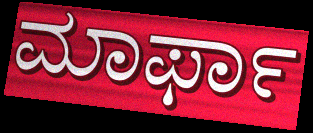
ಮಾರ್ಫಾ